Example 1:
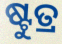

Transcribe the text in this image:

ଷ୍ଟୁତ୍ର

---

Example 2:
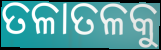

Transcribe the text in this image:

ତଳାତଳକୁ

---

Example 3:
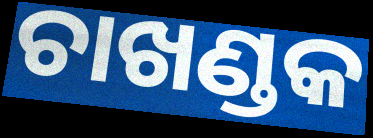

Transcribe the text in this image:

ଚାଖଣ୍ଡକ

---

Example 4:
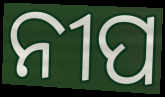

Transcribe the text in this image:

ନୀପ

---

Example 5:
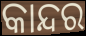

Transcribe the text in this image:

କାନ୍ଦର